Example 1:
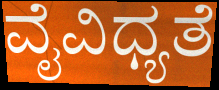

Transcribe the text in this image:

ವೈವಿಧ್ಯತೆ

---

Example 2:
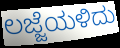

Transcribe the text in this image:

ಲಜ್ಜೆಯಳಿದು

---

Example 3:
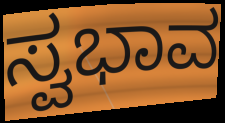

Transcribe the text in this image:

ಸ್ವಭಾವ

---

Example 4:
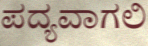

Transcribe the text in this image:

ಪದ್ಯವಾಗಲಿ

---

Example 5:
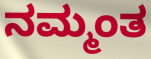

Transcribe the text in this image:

ನಮ್ಮಂತ